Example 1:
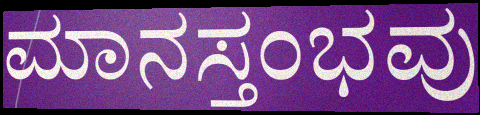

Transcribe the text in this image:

ಮಾನಸ್ತಂಭವು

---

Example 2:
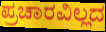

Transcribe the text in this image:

ಪ್ರಚಾರವಿಲ್ಲದ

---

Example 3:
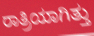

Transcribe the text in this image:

ರಾತ್ರಿಯಾಗಿತ್ತು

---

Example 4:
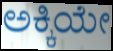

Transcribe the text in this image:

ಅಕ್ಕಿಯೇ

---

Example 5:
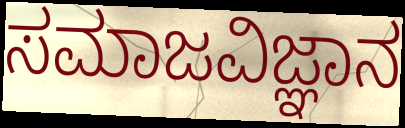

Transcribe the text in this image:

ಸಮಾಜವಿಜ್ಞಾನ